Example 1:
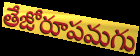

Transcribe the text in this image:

తేజోరూపమగు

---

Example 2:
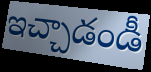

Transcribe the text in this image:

ఇచ్చాడండీ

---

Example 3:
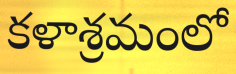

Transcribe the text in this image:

కళాశ్రమంలో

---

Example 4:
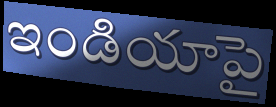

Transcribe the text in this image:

ఇండియాపై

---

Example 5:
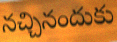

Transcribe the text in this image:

నచ్చినందుకు